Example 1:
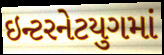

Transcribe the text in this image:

ઇન્ટરનેટયુગમાં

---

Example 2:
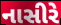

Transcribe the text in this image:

નાસીરે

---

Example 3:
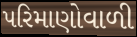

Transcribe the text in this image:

પરિમાણોવાળી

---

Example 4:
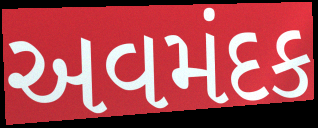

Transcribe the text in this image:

અવમંદક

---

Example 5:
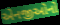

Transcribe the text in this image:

એનજીઓનો